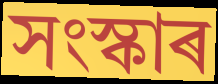
সংস্কাৰ